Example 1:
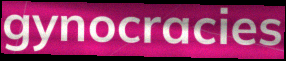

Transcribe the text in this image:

gynocracies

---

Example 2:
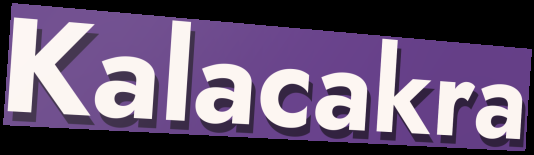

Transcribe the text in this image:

Kalacakra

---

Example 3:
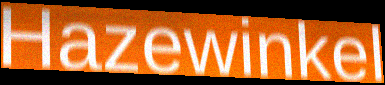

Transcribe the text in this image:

Hazewinkel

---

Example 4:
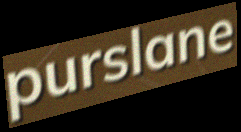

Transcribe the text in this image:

purslane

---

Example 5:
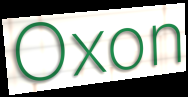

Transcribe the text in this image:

Oxon